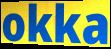
okka